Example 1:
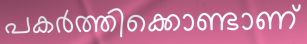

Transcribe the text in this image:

പകർത്തിക്കൊണ്ടാണ്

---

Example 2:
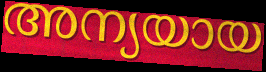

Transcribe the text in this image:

അന്യയായ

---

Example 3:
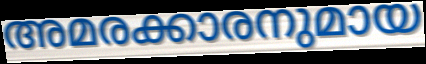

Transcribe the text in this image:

അമരക്കാരനുമായ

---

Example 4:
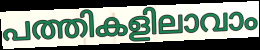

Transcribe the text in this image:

പത്തികളിലാവാം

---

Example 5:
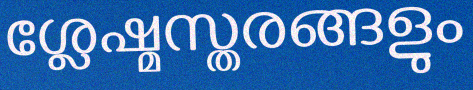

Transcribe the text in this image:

ശ്ലേഷ്മസ്തരങ്ങളും